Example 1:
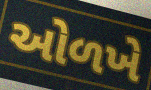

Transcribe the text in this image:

ઓળખે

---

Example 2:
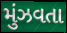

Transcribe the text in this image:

મુંઝવતા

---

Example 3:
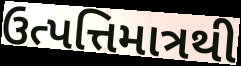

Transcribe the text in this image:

ઉત્પત્તિમાત્રથી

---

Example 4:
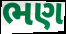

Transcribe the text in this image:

ભણ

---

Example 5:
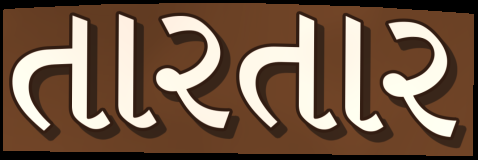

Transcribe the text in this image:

તારતાર